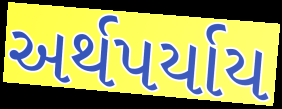
અર્થપર્યાય